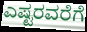
ಎಷ್ಟರವರೆಗೆ